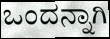
ಒಂದನ್ನಾಗಿ